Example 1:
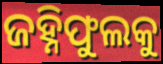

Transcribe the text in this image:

ଜହ୍ନିଫୁଲକୁ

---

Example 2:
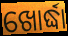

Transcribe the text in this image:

ଖୋର୍ଦ୍ଧା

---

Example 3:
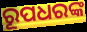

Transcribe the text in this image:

ରୂପଧରଙ୍କ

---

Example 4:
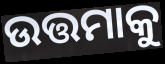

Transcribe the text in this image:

ଉତ୍ତମାକୁ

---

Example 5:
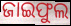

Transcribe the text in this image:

ଜାଇଫୁଲ